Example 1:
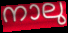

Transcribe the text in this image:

നാലു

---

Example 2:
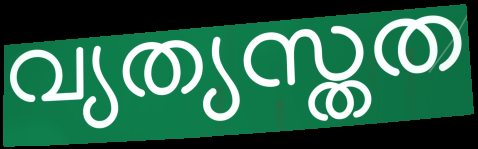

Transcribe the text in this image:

വ്യത്യസ്തത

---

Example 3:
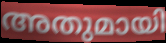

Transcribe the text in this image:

അതുമായി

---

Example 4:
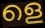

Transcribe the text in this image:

ളെ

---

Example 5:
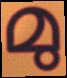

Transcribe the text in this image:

മു